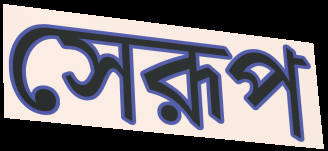
সেরূপ